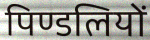
पिण्डलियों